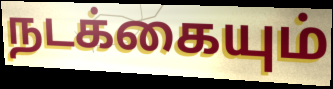
நடக்கையும்